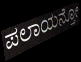
ಪಲಾಯನ್ತೋ